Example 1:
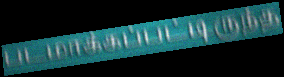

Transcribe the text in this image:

படமாக்கப்பட்டிருந்த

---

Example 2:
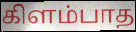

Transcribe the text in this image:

கிளம்பாத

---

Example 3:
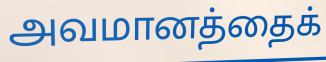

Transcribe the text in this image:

அவமானத்தைக்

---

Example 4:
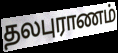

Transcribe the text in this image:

தலபுராணம்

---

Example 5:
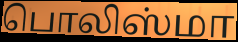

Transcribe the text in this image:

பொலிஸ்மா